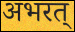
अभरत्